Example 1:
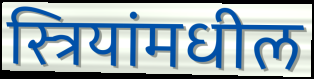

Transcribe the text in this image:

स्त्रियांमधील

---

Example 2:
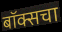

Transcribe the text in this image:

बॉक्सचा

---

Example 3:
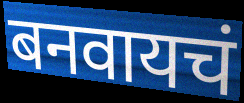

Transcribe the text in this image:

बनवायचं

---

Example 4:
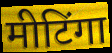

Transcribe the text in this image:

मीटिंगा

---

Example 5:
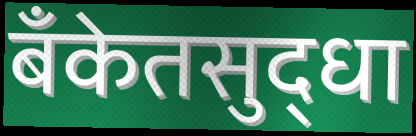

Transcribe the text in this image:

बँकेतसुद्धा